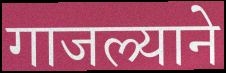
गाजल्याने